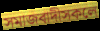
সমাজবাদীসকলে